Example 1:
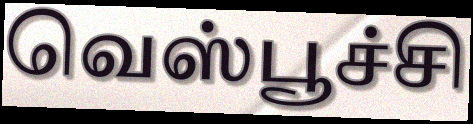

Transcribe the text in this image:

வெஸ்பூச்சி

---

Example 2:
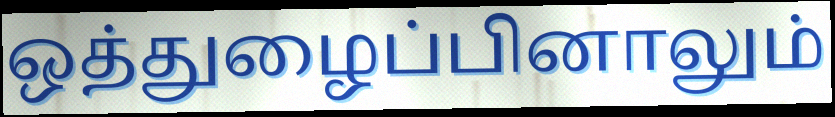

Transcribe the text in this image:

ஒத்துழைப்பினாலும்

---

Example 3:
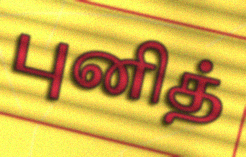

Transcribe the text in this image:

புனித்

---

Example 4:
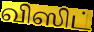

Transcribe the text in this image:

விஸிட்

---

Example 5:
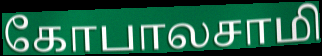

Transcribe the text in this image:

கோபாலசாமி